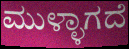
ಮುಳ್ಳಾಗದೆ